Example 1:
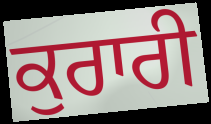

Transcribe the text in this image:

ਕੁਰਾਰੀ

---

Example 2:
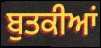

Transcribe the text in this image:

ਬੁਤਕੀਆਂ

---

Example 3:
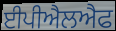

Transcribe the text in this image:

ਈਪੀਐਲਐਫ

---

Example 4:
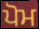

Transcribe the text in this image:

ਪੋਮ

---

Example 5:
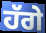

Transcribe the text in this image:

ਹੱਗੇ